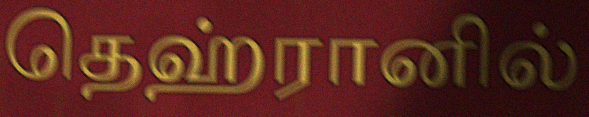
தெஹ்ரானில்